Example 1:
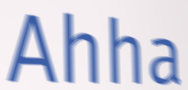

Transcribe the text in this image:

Ahha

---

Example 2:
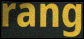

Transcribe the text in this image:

rang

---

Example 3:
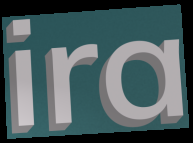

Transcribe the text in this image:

ira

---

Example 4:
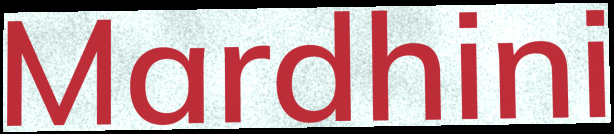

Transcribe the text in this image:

Mardhini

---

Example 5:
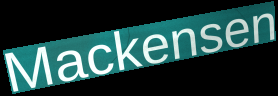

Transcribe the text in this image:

Mackensen